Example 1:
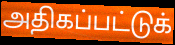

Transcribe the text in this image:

அதிகப்பட்டுக்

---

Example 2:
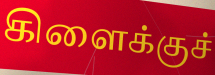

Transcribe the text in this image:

கிளைக்குச்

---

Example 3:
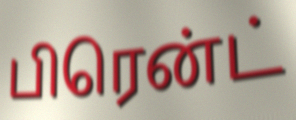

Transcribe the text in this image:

பிரென்ட்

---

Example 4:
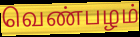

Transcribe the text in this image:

வெண்பழம்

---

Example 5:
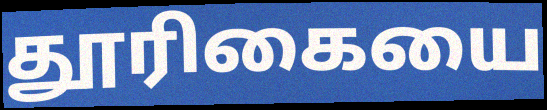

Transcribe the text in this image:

தூரிகையை